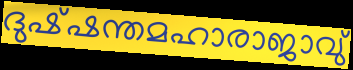
ദുഷ്ഷന്തമഹാരാജാവു്